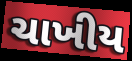
ચાખીય